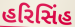
હરિસિંહ